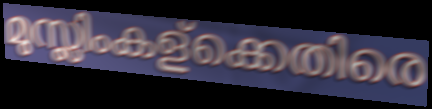
മുസ്ലിംകള്ക്കെതിരെ